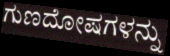
ಗುಣದೋಷಗಳನ್ನು